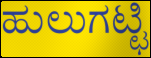
ಹುಲುಗಟ್ಟಿ